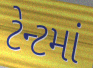
ટેન્ટમાં